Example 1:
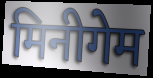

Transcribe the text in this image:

मिनीगेम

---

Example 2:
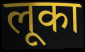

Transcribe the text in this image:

लूका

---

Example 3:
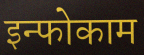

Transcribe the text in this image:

इन्फोकाम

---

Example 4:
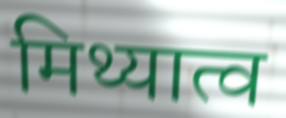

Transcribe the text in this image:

मिथ्यात्व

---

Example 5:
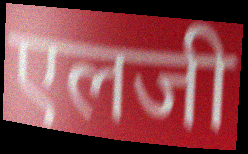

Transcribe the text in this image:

एलजी